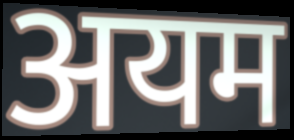
अयम